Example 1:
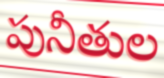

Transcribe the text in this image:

పునీతుల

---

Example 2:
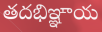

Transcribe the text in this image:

తదభిఞ్ఞాయ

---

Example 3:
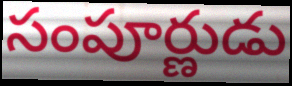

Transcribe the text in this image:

సంపూర్ణుడు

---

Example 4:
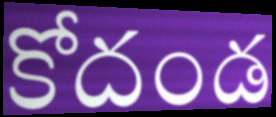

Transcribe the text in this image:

కోదండ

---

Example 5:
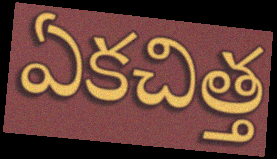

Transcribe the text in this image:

ఏకచిత్త